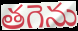
తగెను